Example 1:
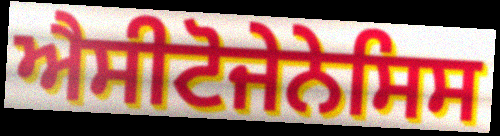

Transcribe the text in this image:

ਐਸੀਟੋਜੇਨੇਸਿਸ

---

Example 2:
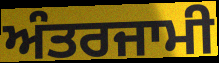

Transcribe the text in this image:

ਅੰਤਰਜਾਮੀ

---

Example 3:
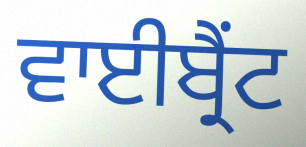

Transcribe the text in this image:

ਵਾਈਬ੍ਰੈਂਟ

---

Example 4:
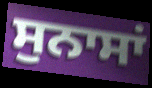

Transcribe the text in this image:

ਸੁਨਾਸਾਂ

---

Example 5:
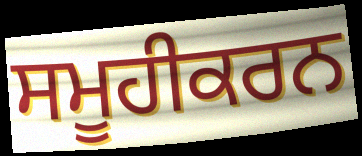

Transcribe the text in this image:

ਸਮੂਹੀਕਰਨ